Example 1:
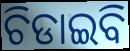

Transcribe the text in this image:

ଚିଡାଇବି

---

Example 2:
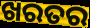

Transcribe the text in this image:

ଖରତର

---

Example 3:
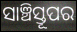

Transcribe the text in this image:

ସାଞ୍ଚିସ୍ତୂପର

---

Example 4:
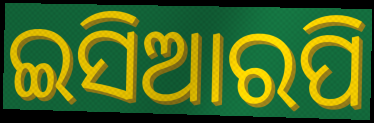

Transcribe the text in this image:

ଇସିଆରପି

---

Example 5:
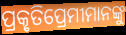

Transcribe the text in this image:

ପ୍ରକୃତିପ୍ରେମୀମାନଙ୍କୁ